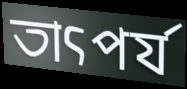
তাৎপৰ্য